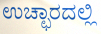
ಉಚ್ಛಾರದಲ್ಲಿ